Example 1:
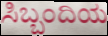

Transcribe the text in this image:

ಸಿಬ್ಬಂದಿಯ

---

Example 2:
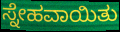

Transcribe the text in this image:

ಸ್ನೇಹವಾಯಿತು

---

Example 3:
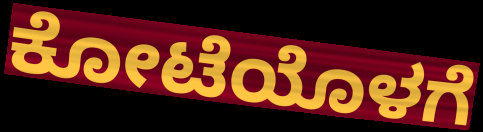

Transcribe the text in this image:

ಕೋಟೆಯೊಳಗೆ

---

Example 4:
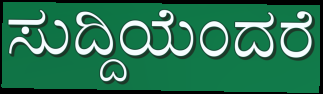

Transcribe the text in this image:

ಸುದ್ದಿಯೆಂದರೆ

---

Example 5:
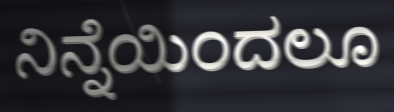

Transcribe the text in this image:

ನಿನ್ನೆಯಿಂದಲೂ